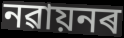
নৱায়নৰ